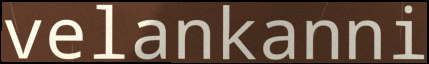
velankanni